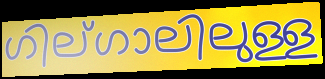
ഗില്ഗാലിലുള്ള